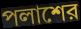
পলাশের